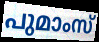
പുമാംസ്